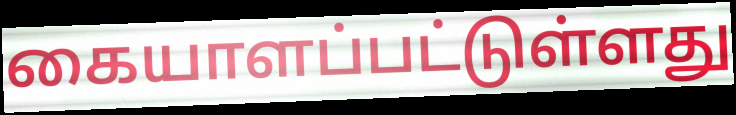
கையாளப்பட்டுள்ளது